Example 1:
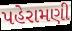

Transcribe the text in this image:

પહેરામણી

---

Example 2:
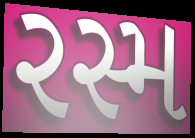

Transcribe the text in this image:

રસ્મ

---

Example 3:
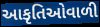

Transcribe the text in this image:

આકૃતિઓવાળી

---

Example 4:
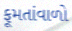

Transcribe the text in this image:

ફૂમતાંવાળો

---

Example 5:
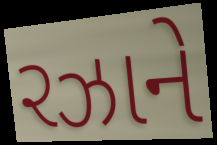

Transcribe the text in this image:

રઝાને